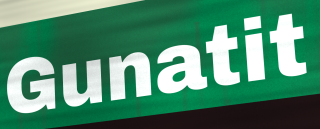
Gunatit